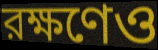
রক্ষণেও